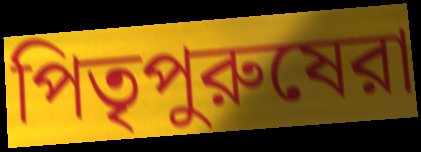
পিতৃপুরুষেরা